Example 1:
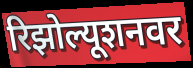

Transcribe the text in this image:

रिझोल्यूशनवर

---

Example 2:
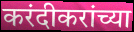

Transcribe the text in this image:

करंदीकरांच्या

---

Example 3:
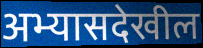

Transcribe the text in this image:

अभ्यासदेखील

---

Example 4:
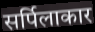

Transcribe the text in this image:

सर्पिलाकार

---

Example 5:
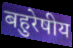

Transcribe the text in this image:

बहुरेषीय